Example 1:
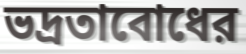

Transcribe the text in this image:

ভদ্রতাবোধের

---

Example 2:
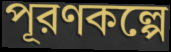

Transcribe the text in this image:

পূরণকল্পে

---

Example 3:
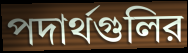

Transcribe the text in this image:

পদার্থগুলির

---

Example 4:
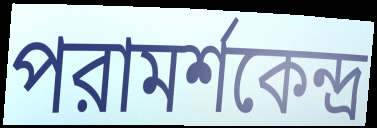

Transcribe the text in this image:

পরামর্শকেন্দ্র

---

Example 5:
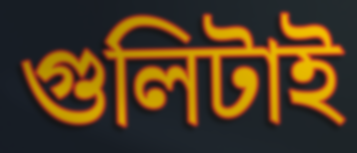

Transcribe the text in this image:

গুলিটাই